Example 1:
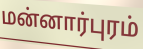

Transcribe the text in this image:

மன்னார்புரம்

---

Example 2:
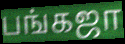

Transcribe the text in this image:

பங்கஜா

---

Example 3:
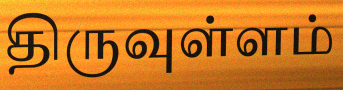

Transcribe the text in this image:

திருவுள்ளம்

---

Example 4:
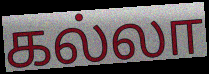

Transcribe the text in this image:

கல்லா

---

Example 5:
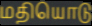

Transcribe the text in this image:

மதியொடு